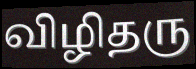
விழிதரு